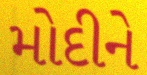
મોદીને